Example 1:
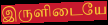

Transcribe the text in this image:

இருளிடையே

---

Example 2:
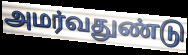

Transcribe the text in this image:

அமர்வதுண்டு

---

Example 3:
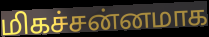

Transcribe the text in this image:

மிகச்சன்னமாக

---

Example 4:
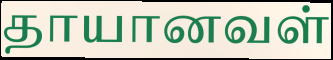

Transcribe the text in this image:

தாயானவள்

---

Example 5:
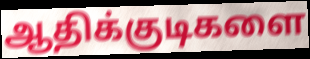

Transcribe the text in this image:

ஆதிக்குடிகளை